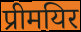
प्रीमयिर